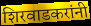
शिरवाडकरांनी